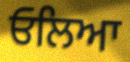
ਓਲਿਆ